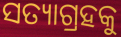
ସତ୍ୟାଗ୍ରହକୁ